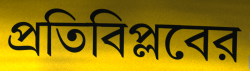
প্রতিবিপ্লবের